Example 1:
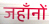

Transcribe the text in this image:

जहाँनों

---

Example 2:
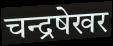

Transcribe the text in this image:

चन्द्रषेखर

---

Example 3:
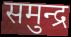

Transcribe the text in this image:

समुन्द्र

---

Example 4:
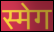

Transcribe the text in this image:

स्मेग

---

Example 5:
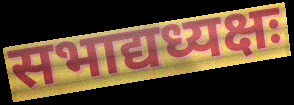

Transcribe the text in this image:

सभाद्यध्यक्षः